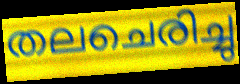
തലചെരിച്ചു